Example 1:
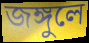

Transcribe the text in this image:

জঙ্গুলে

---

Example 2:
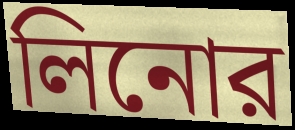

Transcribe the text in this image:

লিনোর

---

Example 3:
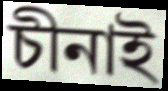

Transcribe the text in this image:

চীনাই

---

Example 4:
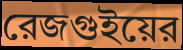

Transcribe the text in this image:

রেজগুইয়ের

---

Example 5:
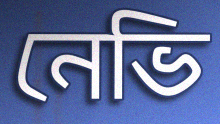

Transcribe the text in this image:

নেভি